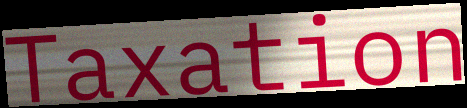
Taxation